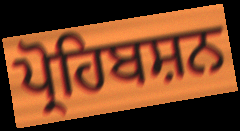
ਪ੍ਰੋਹਿਬਸ਼ਨ